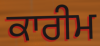
ਕਾਰੀਮ